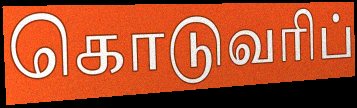
கொடுவரிப்